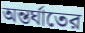
অন্তর্ঘাতের